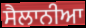
ਸੈਲਾਨੀਆ